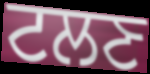
ਟਲਣ